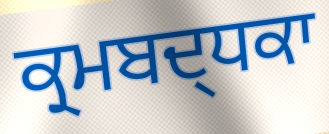
ਕ੍ਰਮਬਦ੍ਧਕਾ